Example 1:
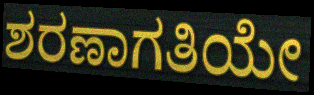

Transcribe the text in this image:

ಶರಣಾಗತಿಯೇ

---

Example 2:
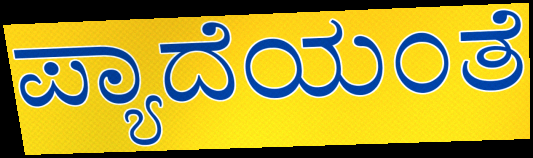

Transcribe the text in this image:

ಪ್ಯಾದೆಯಂತೆ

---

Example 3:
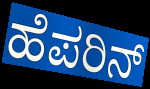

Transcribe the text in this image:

ಹೆಪರಿನ್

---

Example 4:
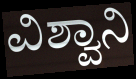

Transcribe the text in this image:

ವಿಶ್ವಾನಿ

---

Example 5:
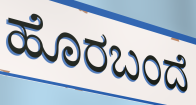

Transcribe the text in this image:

ಹೊರಬಂದೆ